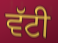
ਵੱਟੀ